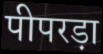
पीपरड़ा